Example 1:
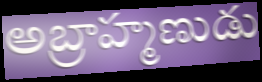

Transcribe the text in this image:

అబ్రాహ్మణుడు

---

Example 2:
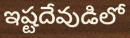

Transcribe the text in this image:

ఇష్టదేవుడిలో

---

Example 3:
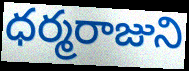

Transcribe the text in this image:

ధర్మరాజుని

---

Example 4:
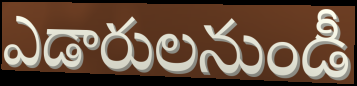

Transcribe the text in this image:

ఎడారులనుండీ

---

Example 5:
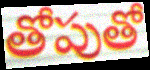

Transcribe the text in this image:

తోపుతో